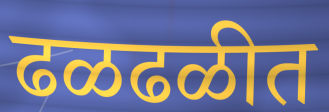
ढळढळीत